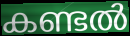
കണ്ടൽ